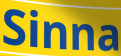
Sinna